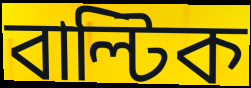
বাল্টিক